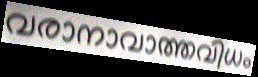
വരാനാവാത്തവിധം